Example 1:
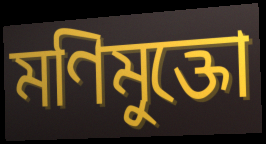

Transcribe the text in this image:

মণিমুক্তো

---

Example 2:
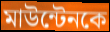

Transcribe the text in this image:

মাউন্টেনকে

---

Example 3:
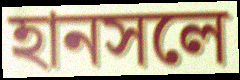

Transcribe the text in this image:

হানসলে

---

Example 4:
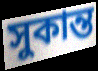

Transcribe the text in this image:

সুকান্ত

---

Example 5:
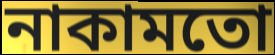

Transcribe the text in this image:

নাকামতো